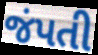
જંપતી